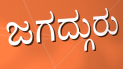
ಜಗದ್ಗುರು